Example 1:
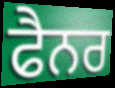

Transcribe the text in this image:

ਫੈਨਰ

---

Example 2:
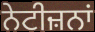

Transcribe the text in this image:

ਨੇਟੀਜ਼ਨਾਂ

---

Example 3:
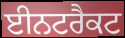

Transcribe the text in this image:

ਈਨਟਰੈਕਟ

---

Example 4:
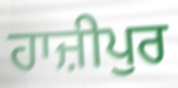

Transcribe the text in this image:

ਹਾਜ਼ੀਪੁਰ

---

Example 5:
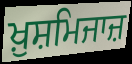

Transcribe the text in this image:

ਖ਼ੁਸ਼ਮਿਜਾਜ਼